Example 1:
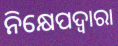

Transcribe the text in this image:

ନିକ୍ଷେପଦ୍ୱାରା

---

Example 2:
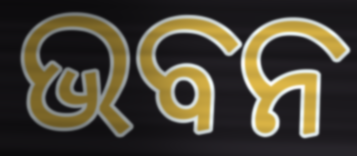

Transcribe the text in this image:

ଭବନ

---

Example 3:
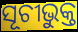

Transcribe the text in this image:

ସୂଚୀଭୁକ୍ତ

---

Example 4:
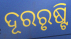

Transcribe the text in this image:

ଦୂରରୃଷ୍ଟି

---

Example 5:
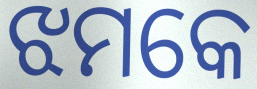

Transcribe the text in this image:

ଝମକେ